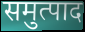
समुत्पाद